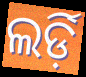
ଲର୍ଡ଼ି